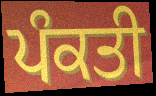
ਪੰਕਤੀ